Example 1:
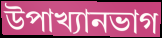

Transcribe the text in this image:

উপাখ্যানভাগ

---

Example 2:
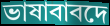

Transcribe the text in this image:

ভাষাবাবদে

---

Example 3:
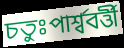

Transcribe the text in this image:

চতুঃপার্শ্ববর্ত্তী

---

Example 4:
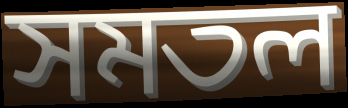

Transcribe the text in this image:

সমতল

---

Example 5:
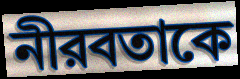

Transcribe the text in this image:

নীরবতাকে